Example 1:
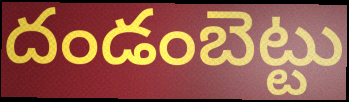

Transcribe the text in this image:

దండంబెట్టు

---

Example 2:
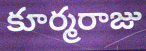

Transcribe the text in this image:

కూర్మరాజు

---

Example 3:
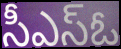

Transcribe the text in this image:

సీఎస్ఓ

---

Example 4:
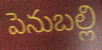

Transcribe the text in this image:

పెనుబల్లి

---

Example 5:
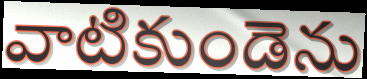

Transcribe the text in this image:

వాటికుండెను